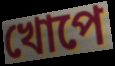
খোপে